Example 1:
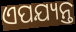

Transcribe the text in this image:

ଏପଯ୍ୟନ୍ତ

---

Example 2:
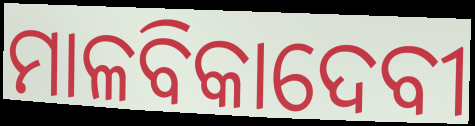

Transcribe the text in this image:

ମାଳବିକାଦେବୀ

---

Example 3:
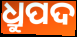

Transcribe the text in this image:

ଧ୍ରୁପଦ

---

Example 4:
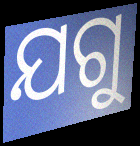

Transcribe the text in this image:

ଯଗୁ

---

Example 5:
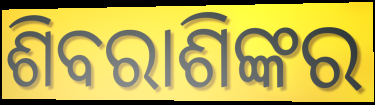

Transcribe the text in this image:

ଶିବରାଶିଙ୍କର